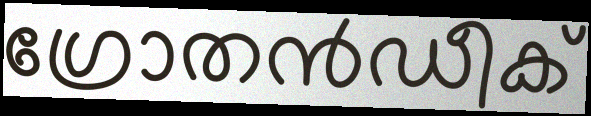
ഗ്രോതൻഡീക്